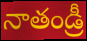
నాతండ్రీ